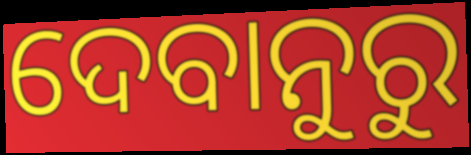
ଦେବାନୁରୁ